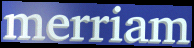
merriam